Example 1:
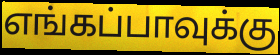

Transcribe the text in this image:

எங்கப்பாவுக்கு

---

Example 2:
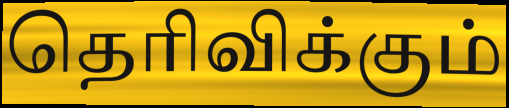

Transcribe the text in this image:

தெரிவிக்கும்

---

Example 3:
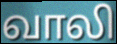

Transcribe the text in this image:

வாலி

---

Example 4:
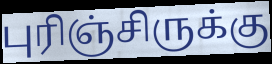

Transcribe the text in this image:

புரிஞ்சிருக்கு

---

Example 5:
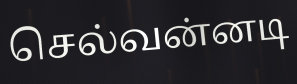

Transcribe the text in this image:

செல்வன்னடி